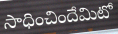
సాధించిందేమిటో